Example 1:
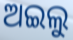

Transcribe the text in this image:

ଅଇଲୁ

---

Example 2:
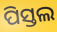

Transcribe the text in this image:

ପିସ୍ତଲ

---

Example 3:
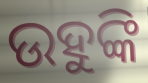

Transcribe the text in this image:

ଉହୁଙ୍କି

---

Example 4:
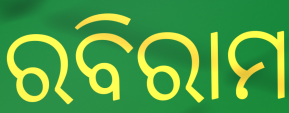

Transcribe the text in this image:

ରବିରାମ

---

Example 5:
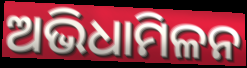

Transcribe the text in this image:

ଅଭିଧାମିଳନ